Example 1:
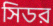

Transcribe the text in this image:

সিডর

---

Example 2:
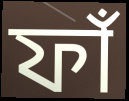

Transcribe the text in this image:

ফাঁ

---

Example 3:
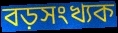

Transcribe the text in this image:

বড়সংখ্যক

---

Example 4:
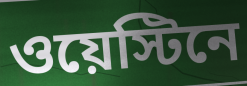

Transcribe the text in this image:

ওয়েস্টিনে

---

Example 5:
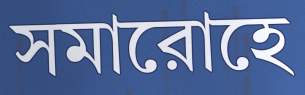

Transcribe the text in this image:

সমারোহে